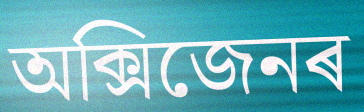
অক্সিজেনৰ